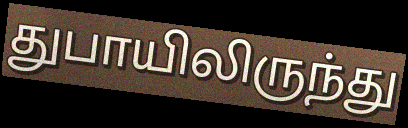
துபாயிலிருந்து